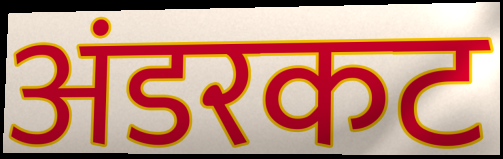
अंडरकट